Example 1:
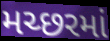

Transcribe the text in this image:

મચ્છરમાં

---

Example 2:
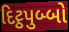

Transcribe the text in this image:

દિટ્ઠપુબ્બો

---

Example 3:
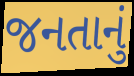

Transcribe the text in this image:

જનતાનું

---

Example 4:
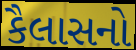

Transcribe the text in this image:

કૈલાસનો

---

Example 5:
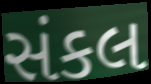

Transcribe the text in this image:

સંકલ